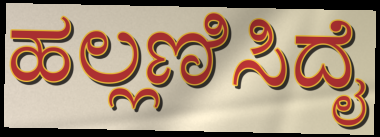
ಹಲ್ಲಣಿಸಿದೈ